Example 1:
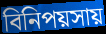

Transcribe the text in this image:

বিনিপয়সায়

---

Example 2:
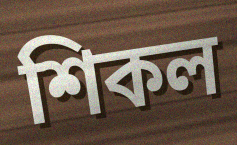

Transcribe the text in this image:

শিকল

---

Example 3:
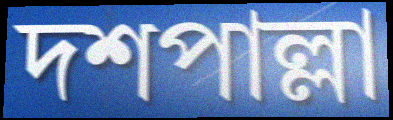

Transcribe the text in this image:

দশপাল্লা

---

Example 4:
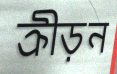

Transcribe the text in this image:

ক্রীড়ন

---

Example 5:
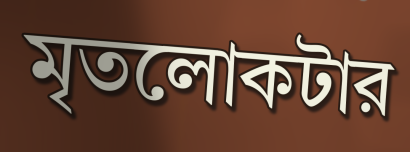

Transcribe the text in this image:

মৃতলোকটার